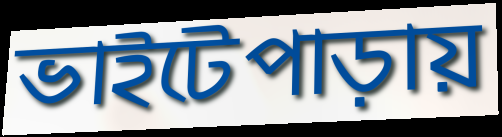
ভাইটেপাড়ায়